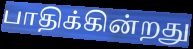
பாதிக்கின்றது